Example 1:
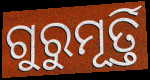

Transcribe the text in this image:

ଗୁରୁମୂର୍ତ୍ତି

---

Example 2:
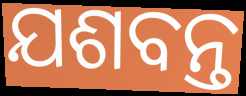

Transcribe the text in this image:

ଯଶବନ୍ତ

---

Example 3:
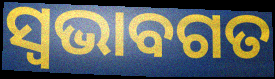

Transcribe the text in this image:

ସ୍ୱଭାବଗତ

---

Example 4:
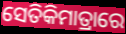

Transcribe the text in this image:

ସେତିକିମାତ୍ରାରେ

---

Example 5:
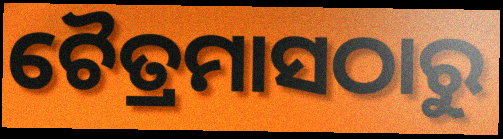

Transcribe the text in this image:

ଚୈତ୍ରମାସଠାରୁ